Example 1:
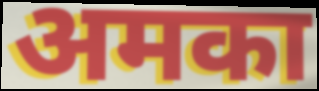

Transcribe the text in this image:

अमका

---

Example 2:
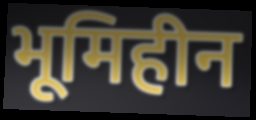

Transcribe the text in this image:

भूमिहीन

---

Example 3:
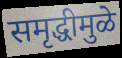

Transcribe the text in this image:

समृद्धीमुळे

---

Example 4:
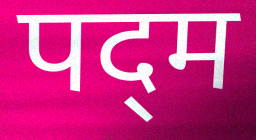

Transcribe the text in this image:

पद्‌म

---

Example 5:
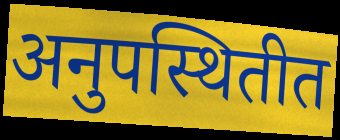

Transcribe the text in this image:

अनुपस्थितीत